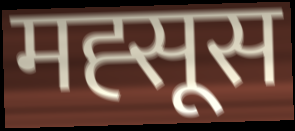
मह्सूस